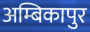
अम्बिकापुर